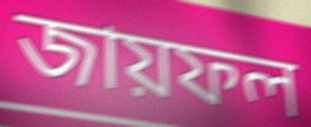
জায়ফল